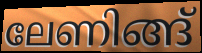
ലേണിങ്ങ്